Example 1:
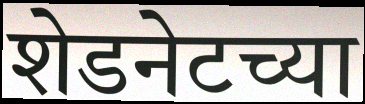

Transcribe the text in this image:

शेडनेटच्या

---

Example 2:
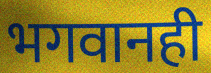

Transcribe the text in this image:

भगवानही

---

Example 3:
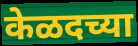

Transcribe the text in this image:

केळदच्या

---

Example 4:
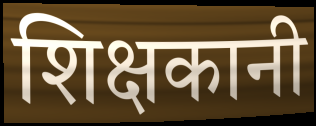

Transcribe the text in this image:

शिक्षकानी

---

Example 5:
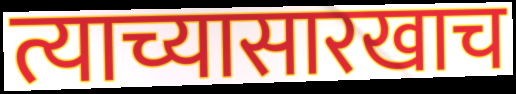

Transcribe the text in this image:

त्याच्यासारखाच